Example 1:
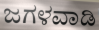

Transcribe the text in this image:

ಜಗಳವಾಡಿ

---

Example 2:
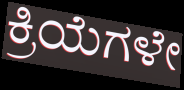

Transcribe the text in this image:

ಕ್ರಿಯೆಗಳೇ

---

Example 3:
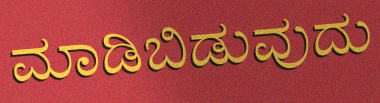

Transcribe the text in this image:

ಮಾಡಿಬಿಡುವುದು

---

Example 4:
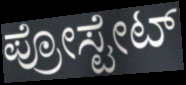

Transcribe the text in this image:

ಪ್ರೋಸ್ಟೇಟ್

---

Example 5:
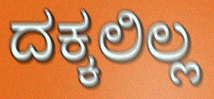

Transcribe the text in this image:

ದಕ್ಕಲಿಲ್ಲ